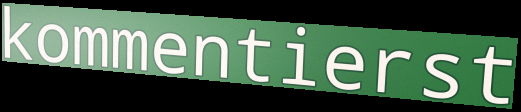
kommentierst